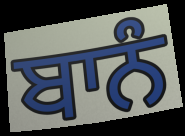
ਬਾਨੰ